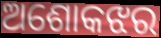
ଅଶୋକଝର